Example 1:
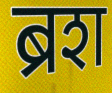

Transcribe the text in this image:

ब्रश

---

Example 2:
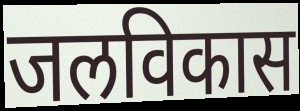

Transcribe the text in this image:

जलविकास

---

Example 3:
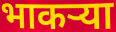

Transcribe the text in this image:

भाकऱ्या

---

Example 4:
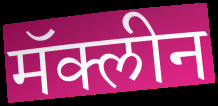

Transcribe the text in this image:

मॅक्लीन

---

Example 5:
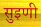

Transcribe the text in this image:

सुइणी